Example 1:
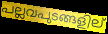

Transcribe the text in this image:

പല്ലവപുടങ്ങളില്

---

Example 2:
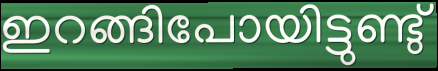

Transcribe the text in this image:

ഇറങ്ങിപോയിട്ടുണ്ടു്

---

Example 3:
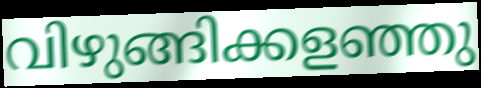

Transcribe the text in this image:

വിഴുങ്ങിക്കളഞ്ഞു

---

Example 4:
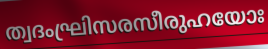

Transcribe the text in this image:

ത്വദംഘ്രിസരസീരുഹയോഃ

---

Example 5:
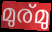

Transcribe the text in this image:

മുര്മു